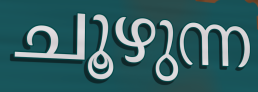
ചൂഴുന്ന